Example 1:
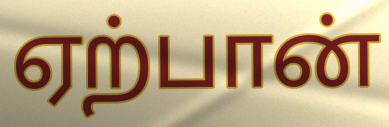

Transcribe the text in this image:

ஏற்பான்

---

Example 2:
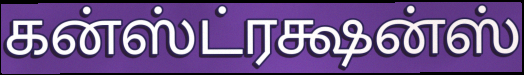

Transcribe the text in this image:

கன்ஸ்ட்ரக்ஷன்ஸ்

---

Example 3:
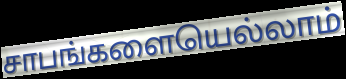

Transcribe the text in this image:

சாபங்களையெல்லாம்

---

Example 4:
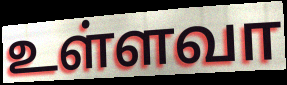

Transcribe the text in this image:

உள்ளவா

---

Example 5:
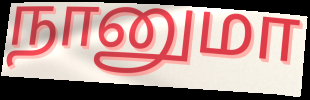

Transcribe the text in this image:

நானுமா